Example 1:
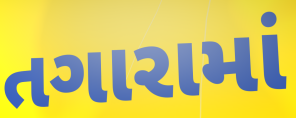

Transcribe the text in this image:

તગારામાં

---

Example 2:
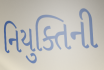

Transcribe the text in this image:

નિયુક્તિની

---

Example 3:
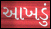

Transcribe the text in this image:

આખડું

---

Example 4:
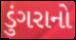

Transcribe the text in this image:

ડુંગરાનો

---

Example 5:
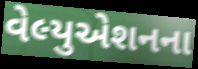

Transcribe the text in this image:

વેલ્યુએશનના